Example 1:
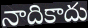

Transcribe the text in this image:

నాదికాదు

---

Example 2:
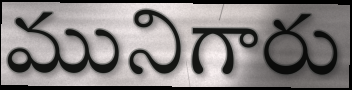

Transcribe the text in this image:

మునిగారు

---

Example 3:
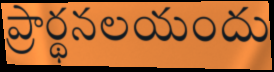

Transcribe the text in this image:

ప్రార్థనలయందు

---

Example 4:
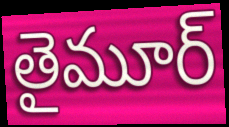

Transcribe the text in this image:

తైమూర్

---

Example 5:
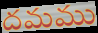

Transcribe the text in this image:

దమము